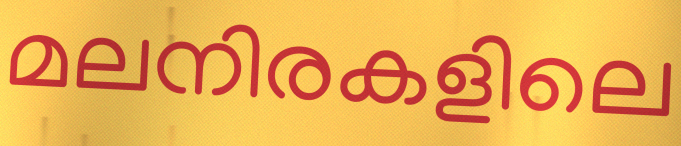
മലനിരകളിലെ